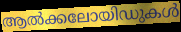
ആൽക്കലോയിഡുകൾ